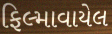
ફિલ્માવાયેલ